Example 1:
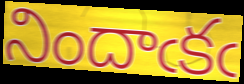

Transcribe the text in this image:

నిందాఁకఁ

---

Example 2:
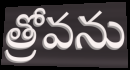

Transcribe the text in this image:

త్రోవను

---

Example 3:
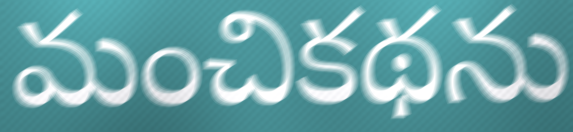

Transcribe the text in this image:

మంచికథను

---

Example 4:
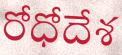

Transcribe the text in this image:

రోధోదేశ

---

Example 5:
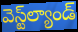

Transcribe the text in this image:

వెస్ట్‌ల్యాండ్